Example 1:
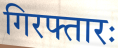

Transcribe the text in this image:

गिरफ्तारः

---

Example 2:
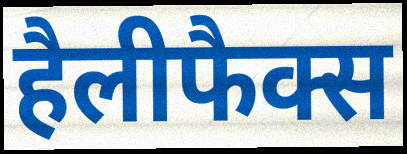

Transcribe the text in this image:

हैलीफैक्स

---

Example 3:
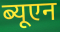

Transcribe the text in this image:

ब्यूएन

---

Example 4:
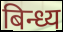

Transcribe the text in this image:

बिन्ध्य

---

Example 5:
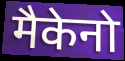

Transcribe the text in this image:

मैकेनो